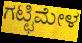
ಗಟ್ಟಿಮೇಳ